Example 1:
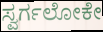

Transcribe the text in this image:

ಸ್ವರ್ಗಲೋಕೇ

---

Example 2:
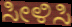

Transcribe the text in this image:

ಸೀಳಿಸಿ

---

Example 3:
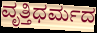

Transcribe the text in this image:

ವೃತ್ತಿಧರ್ಮದ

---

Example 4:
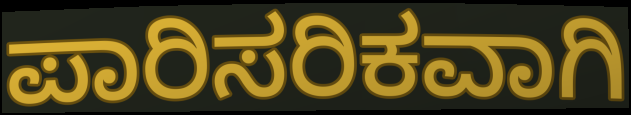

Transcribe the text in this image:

ಪಾರಿಸರಿಕವಾಗಿ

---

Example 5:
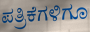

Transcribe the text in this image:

ಪತ್ರಿಕೆಗಳಿಗೂ